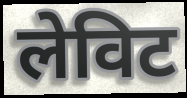
लेविट